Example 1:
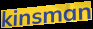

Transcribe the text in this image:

kinsman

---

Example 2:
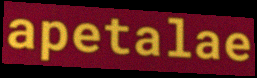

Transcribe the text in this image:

apetalae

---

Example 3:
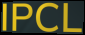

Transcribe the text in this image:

IPCL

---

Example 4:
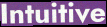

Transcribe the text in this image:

Intuitive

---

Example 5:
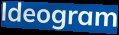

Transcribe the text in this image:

Ideogram